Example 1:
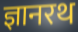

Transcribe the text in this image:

ज्ञानरथ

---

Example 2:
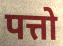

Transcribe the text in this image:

पत्तो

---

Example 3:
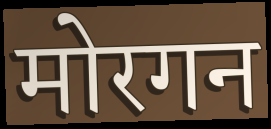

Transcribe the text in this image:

मोरगन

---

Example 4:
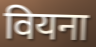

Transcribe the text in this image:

वियना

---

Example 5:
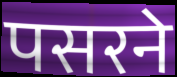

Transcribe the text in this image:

पसरने